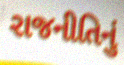
રાજનીતિનું